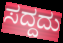
ಸದ್ದದು